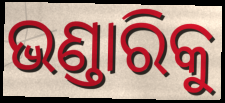
ଭଣ୍ଡାରିକୁ